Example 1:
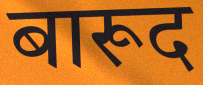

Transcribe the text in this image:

बारूद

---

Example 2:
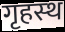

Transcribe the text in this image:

गृहस्‍थ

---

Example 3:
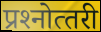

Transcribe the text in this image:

प्रश्‍नोत्‍तरी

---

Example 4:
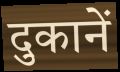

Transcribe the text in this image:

दुकानें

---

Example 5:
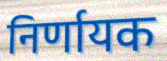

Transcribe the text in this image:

निर्णायक